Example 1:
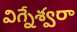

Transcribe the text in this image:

విగ్నేశ్వరా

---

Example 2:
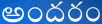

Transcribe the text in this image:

అందరం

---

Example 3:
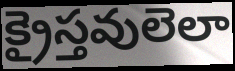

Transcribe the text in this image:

క్రైస్తవులెలా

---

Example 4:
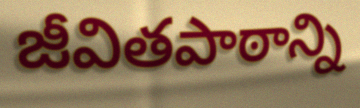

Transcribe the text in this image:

జీవితపాఠాన్ని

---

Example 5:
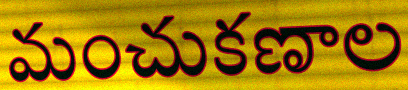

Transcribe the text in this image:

మంచుకణాల